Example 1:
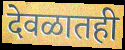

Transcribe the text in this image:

देवळातही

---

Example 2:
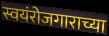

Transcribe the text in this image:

स्वयंरोजगाराच्या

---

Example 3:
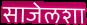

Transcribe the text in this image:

साजेलशा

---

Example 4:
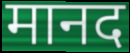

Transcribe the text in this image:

मानद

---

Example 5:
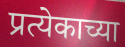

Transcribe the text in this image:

प्रत्येकाच्या